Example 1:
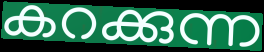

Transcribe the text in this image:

കറക്കുന്ന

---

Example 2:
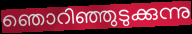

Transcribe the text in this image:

ഞൊറിഞ്ഞുടുക്കുന്നു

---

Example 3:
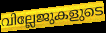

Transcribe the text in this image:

വില്ലേജുകളുടെ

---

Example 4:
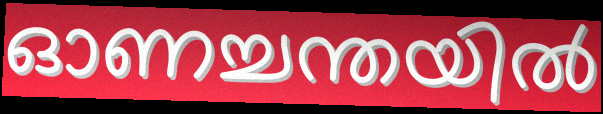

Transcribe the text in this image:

ഓണച്ചന്തയിൽ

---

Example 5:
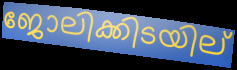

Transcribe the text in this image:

ജോലിക്കിടയില്